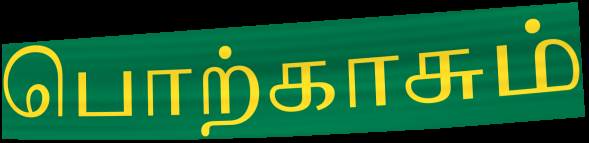
பொற்காசும்